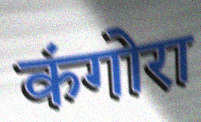
कंगोरा